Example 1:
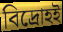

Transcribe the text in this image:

বিদ্রোহই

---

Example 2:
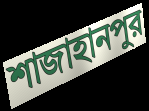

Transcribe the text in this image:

শাজাহানপুর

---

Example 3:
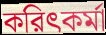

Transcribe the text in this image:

করিৎকর্মা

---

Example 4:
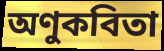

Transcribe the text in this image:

অণুকবিতা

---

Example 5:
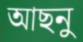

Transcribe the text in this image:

আছনু